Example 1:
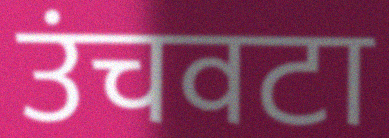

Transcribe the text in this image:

उंचवटा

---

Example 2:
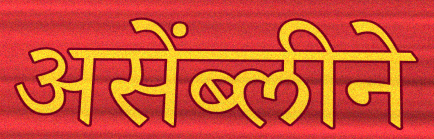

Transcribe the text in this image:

असेंब्लीने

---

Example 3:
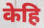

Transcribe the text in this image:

केहि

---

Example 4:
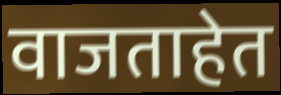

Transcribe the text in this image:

वाजताहेत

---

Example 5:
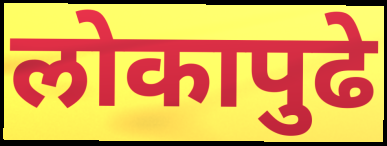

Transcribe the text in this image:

लोकापुढे